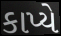
કાપ્યે